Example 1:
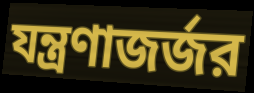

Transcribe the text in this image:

যন্ত্রণাজর্জর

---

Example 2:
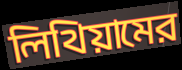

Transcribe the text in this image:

লিথিয়ামের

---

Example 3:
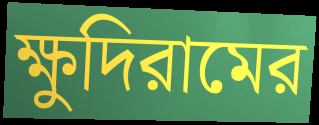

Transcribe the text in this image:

ক্ষুদিরামের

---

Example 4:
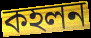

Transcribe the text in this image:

কহলন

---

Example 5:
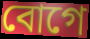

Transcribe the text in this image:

বোগে